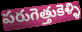
పరుగెత్తుకెళ్ళి